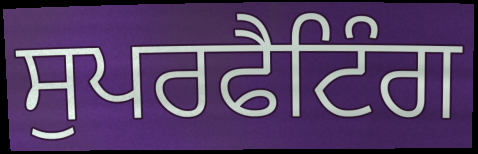
ਸੁਪਰਫੈਟਿੰਗ